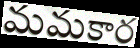
మమకార